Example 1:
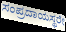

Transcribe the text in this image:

ಸಂಪ್ರದಾಯಸ್ಥರೇ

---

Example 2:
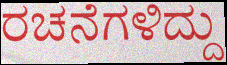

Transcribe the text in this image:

ರಚನೆಗಳಿದ್ದು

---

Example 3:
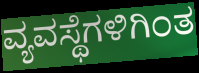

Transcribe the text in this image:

ವ್ಯವಸ್ಥೆಗಳಿಗಿಂತ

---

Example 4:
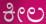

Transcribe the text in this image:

ಕೀಲ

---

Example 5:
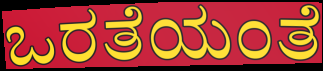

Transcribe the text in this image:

ಒರತೆಯಂತೆ